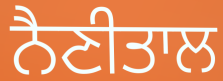
ਨੈਣੀਤਾਲ